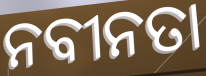
ନବୀନତା